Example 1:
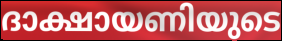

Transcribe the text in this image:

ദാക്ഷായണിയുടെ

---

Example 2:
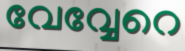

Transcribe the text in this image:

വേവ്വേറെ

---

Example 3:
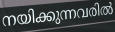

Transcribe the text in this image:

നയിക്കുന്നവരിൽ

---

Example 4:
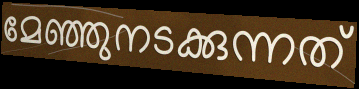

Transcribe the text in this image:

മേഞ്ഞുനടക്കുന്നത്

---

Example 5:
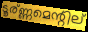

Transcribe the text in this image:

ടൂര്ണ്ണമെന്റില്